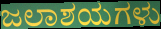
ಜಲಾಶಯಗಳು